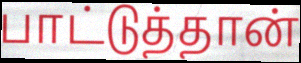
பாட்டுத்தான்